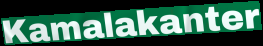
Kamalakanter